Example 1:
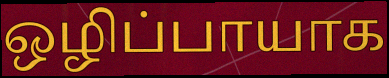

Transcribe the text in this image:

ஒழிப்பாயாக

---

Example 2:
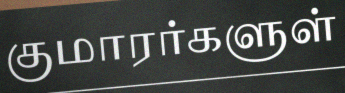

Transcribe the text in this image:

குமாரர்களுள்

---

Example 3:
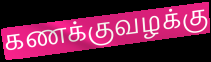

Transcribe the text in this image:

கணக்குவழக்கு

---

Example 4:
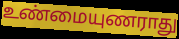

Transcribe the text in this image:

உண்மையுணராது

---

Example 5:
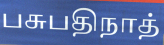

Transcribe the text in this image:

பசுபதிநாத்